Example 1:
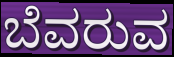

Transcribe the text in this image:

ಬೆವರುವ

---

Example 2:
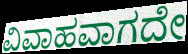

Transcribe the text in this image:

ವಿವಾಹವಾಗದೇ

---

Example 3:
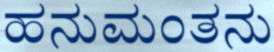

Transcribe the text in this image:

ಹನುಮಂತನು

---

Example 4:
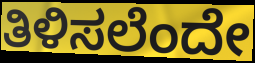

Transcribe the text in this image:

ತಿಳಿಸಲೆಂದೇ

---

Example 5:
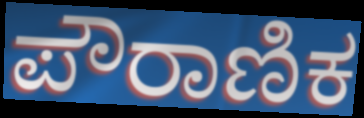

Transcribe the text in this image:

ಪೌರಾಣಿಕ